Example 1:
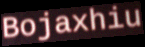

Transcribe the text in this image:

Bojaxhiu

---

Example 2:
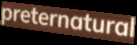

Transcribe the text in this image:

preternatural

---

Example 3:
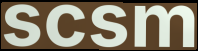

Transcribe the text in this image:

scsm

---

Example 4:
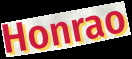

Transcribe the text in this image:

Honrao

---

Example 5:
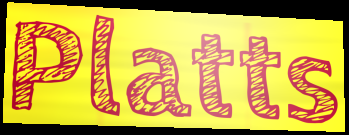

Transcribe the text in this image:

Platts